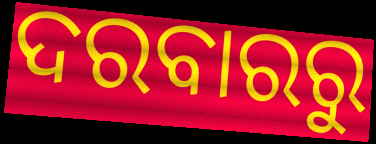
ଦରବାରରୁ